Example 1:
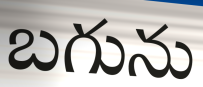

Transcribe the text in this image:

బగును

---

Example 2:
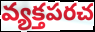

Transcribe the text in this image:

వ్యక్తపరచ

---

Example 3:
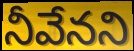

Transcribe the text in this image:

నీవేనని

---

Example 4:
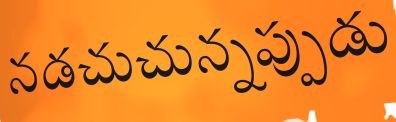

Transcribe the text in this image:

నడచుచున్నప్పుడు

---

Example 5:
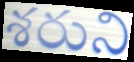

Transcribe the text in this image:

శరుని